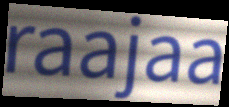
raajaa